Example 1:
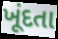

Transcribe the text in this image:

ખૂંદતા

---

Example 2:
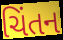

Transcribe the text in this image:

ચિંતન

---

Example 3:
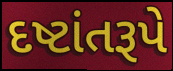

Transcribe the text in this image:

દષ્ટાંતરૂપે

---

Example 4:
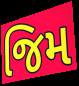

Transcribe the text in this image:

જિમ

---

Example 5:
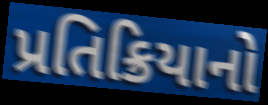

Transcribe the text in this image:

પ્રતિક્રિયાનો